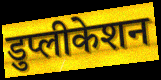
डुप्लीकेशन